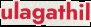
ulagathil